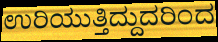
ಉರಿಯುತ್ತಿದ್ದುದರಿಂದ